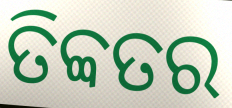
ତିବ୍ବତର